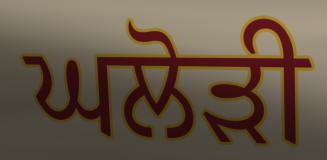
ਘਲੋਡ਼ੀ